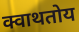
क्वाथतोय